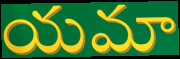
యమా